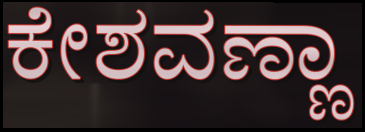
ಕೇಶವಣ್ಣಾ